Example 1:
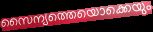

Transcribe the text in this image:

സൈന്യത്തെയൊക്കെയും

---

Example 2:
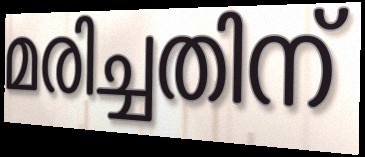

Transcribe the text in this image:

മരിച്ചതിന്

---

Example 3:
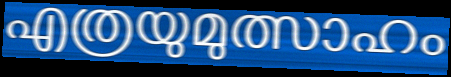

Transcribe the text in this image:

എത്രയുമുത്സാഹം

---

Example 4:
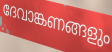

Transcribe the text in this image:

ദേവാങ്കണങ്ങളും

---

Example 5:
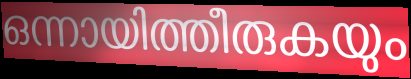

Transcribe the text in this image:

ഒന്നായിത്തീരുകയും